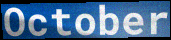
October